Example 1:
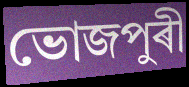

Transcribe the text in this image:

ভোজপুৰী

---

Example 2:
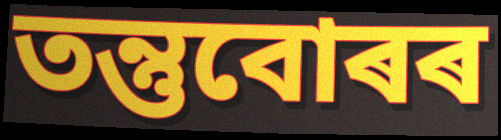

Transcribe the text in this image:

তন্তুবোৰৰ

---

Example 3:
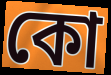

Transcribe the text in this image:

কো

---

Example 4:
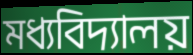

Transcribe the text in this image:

মধ্যবিদ্যালয়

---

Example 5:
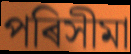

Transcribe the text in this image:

পৰিসীমা